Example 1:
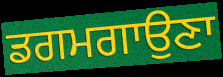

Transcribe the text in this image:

ਡਗਮਗਾਉਣਾ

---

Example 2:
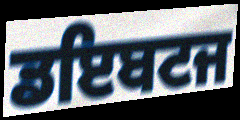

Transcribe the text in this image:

ਡਇਬਟਜ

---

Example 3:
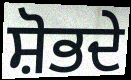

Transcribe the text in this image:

ਸ਼ੋਭਦੇ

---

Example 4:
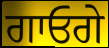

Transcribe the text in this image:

ਗਾਓਗੇ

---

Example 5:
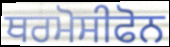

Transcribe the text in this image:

ਥਰਮੋਸੀਫੋਨ